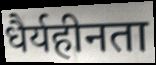
धैर्यहीनता